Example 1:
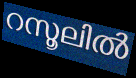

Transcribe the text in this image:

റസൂലിൽ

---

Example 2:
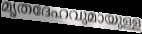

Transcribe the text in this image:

മൃതദേഹവുമായുള്ള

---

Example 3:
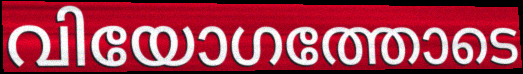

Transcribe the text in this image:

വിയോഗത്തോടെ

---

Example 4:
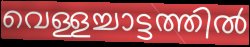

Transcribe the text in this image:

വെള്ളച്ചാട്ടത്തിൽ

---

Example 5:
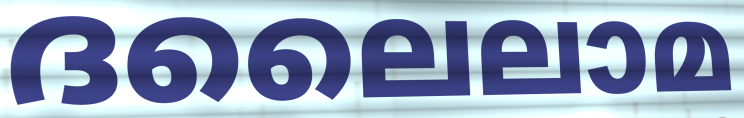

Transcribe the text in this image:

ദലൈലാമ